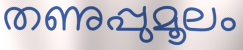
തണുപ്പുമൂലം